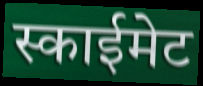
स्काईमेट